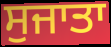
ਸੁਜਾਤਾ